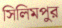
সিলিমপুর